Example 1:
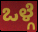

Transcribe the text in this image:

ಒಳ್ಗೆ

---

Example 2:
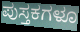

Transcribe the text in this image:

ಪುಸ್ತಕಗಳೂ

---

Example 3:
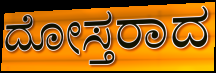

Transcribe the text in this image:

ದೋಸ್ತರಾದ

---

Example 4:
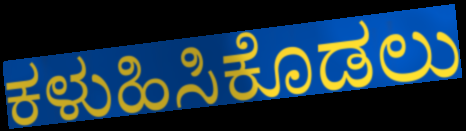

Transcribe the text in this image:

ಕಳುಹಿಸಿಕೊಡಲು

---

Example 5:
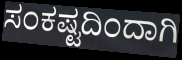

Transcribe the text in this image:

ಸಂಕಷ್ಟದಿಂದಾಗಿ